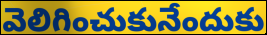
వెలిగించుకునేందుకు